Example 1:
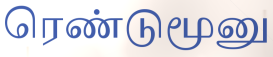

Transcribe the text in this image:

ரெண்டுமூனு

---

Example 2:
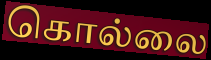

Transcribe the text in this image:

கொல்லை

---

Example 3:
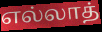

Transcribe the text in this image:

எல்லாத்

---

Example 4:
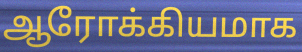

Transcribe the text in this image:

ஆரோக்கியமாக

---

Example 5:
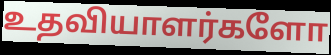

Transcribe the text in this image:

உதவியாளர்களோ